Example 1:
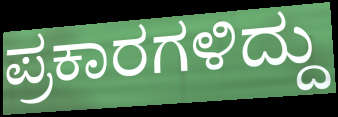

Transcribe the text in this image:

ಪ್ರಕಾರಗಳಿದ್ದು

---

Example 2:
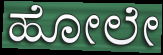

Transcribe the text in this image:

ಹೋಲೇ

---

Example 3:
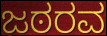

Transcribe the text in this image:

ಜಠರವ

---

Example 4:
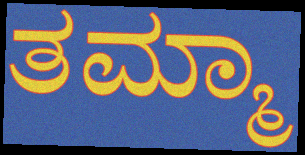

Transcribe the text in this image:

ತಮ್ಮಾ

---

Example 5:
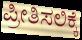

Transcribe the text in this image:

ಪ್ರೀತಿಸಲಿಕ್ಕೆ